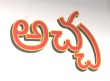
అచ్చ